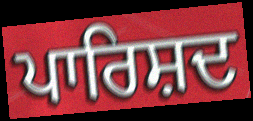
ਪਾਰਿਸ਼ਦ